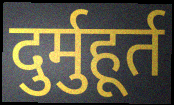
दुर्मुहूर्त